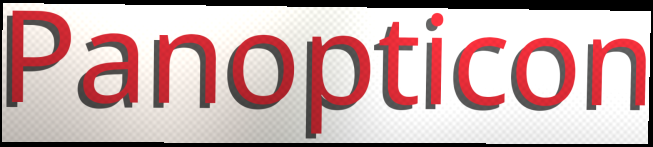
Panopticon